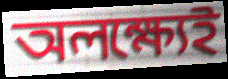
অলক্ষ্যেই